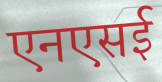
एनएसई